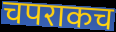
चपराकच